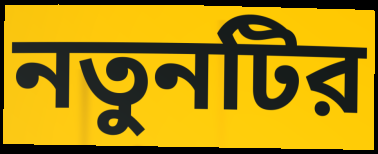
নতুনটির